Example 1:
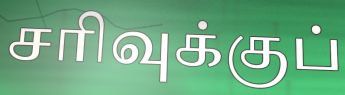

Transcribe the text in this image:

சரிவுக்குப்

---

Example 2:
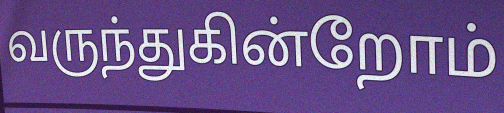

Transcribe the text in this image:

வருந்துகின்றோம்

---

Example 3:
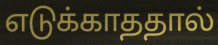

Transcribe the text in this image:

எடுக்காததால்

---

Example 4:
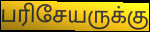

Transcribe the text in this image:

பரிசேயருக்கு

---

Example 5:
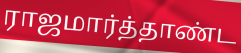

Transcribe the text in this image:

ராஜமார்த்தாண்ட